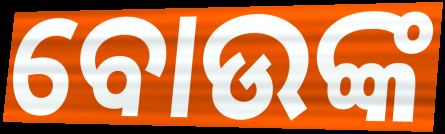
ବୋଉଙ୍କ